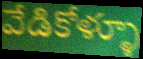
వేడికోళ్ళూ